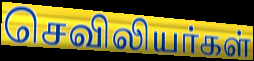
செவிலியர்கள்